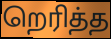
றெரித்த